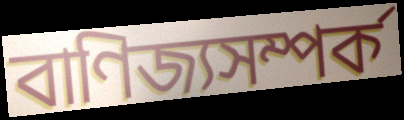
বাণিজ্যসম্পর্ক